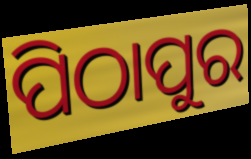
ପିଠାପୁର